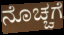
ನೊಚ್ಚಗೆ